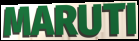
MARUTI